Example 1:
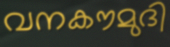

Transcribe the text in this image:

വനകൗമുദി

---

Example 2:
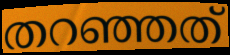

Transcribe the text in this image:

തറഞ്ഞത്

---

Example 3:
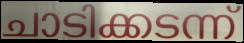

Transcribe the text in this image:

ചാടിക്കടന്ന്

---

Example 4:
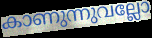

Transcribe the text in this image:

കാണുന്നുവല്ലോ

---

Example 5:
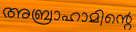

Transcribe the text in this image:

അബ്രാഹാമിന്റെ